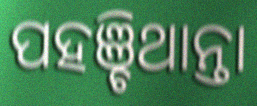
ପହଞ୍ଚିଥାନ୍ତା